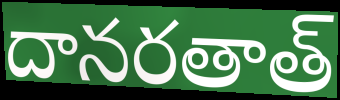
దానరతాత్